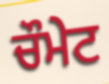
ਚੌਮੇਟ